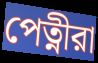
পেত্নীরা